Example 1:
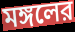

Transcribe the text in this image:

মঙ্গলের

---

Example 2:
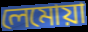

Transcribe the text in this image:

লেমোয়া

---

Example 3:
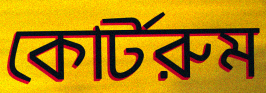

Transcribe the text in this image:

কোর্টরুম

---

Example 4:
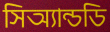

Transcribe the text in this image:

সিঅ্যান্ডডি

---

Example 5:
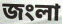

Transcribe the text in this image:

জংলা